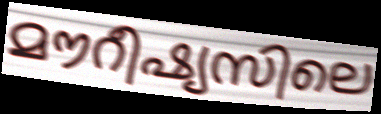
മൗറീഷ്യസിലെ